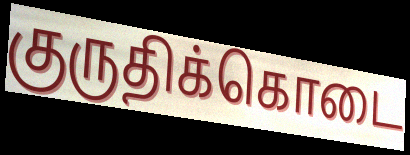
குருதிக்கொடை